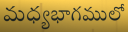
మధ్యభాగములో